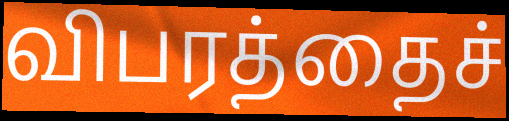
விபரத்தைச்